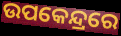
ଉପକେନ୍ଦ୍ରରେ